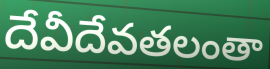
దేవీదేవతలంతా